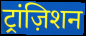
ट्रांज़िशन